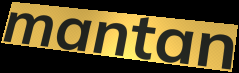
mantan